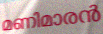
മണിമാരൻ